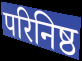
परिनिष्ठ